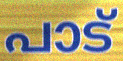
പാട്